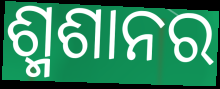
ଶ୍ମଶାନର